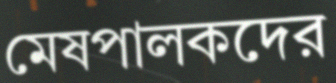
মেষপালকদের